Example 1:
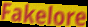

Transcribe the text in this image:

Fakelore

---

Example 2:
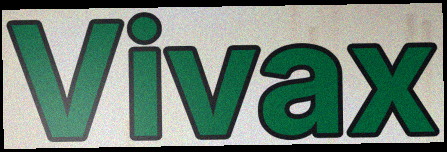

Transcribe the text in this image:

Vivax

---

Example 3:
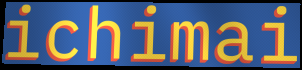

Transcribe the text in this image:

ichimai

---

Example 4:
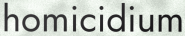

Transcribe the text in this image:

homicidium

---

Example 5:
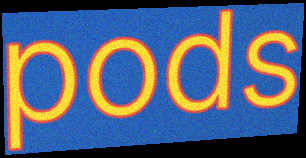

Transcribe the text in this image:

pods